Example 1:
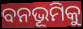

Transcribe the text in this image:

ବନଭୂମିକୁ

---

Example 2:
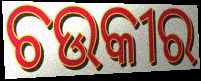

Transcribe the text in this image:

ଚଉକୀର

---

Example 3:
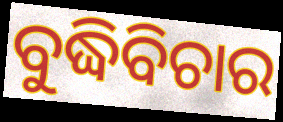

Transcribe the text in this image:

ବୁଦ୍ଧିବିଚାର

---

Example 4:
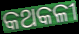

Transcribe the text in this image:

କଥକଳୀ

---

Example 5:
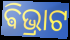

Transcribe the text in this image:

ଵିଭ୍ରାଟ